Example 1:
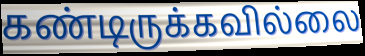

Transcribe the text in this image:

கண்டிருக்கவில்லை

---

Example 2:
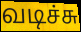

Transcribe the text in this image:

வடிச்சு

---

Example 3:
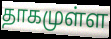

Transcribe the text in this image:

தாகமுள்ள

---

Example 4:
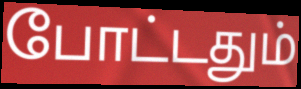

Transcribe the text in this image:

போட்டதும்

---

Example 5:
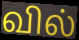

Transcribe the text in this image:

வில்